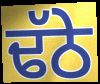
ਢੱਠੇ